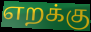
எறக்கு